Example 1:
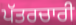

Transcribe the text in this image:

ਪੱਤਰਚਾਰੀ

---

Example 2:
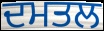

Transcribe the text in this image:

ਦਮਤਲ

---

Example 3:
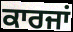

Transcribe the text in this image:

ਕਾਰਜਾਂ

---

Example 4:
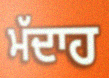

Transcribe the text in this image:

ਮੱਦਾਹ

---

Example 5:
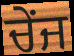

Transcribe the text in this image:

ਚੇਂਜ